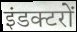
इंडक्टरों